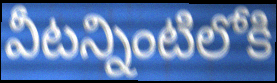
వీటన్నింటిలోకి